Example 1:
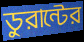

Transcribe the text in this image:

ডুরান্টের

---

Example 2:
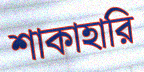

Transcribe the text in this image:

শাকাহারি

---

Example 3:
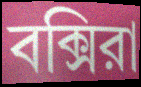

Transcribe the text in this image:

বক্সিরা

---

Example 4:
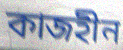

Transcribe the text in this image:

কাজহীন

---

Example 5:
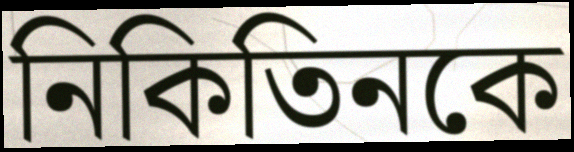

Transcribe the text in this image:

নিকিতিনকে